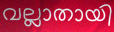
വല്ലാതായി